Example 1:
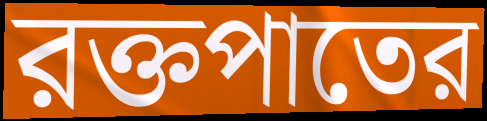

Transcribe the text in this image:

রক্তপাতের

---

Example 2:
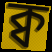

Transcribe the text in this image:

ক্ব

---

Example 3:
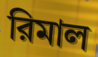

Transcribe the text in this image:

রিমাল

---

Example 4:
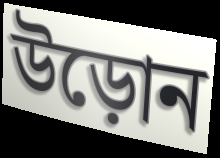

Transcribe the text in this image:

উড়োন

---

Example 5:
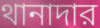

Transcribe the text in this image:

থানাদার